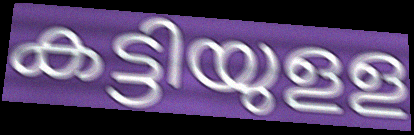
കട്ടിയുളള